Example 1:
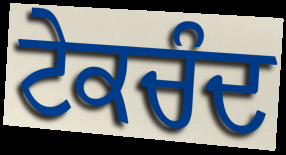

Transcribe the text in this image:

ਟੇਕਚੰਦ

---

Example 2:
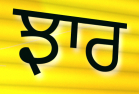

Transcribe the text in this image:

ਝਾਰ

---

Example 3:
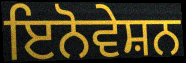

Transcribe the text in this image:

ਇਨੋਵੇਸ਼ਨ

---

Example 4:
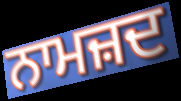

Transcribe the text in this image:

ਨਾਮਜ਼ਦ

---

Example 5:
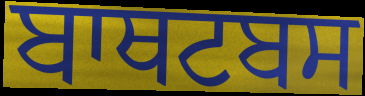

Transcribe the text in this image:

ਬਾਥਟਬਸ